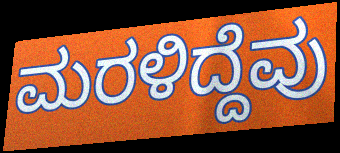
ಮರಳಿದ್ದೆವು